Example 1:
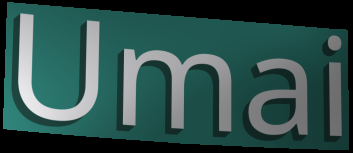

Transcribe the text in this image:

Umai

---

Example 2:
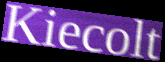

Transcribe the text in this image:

Kiecolt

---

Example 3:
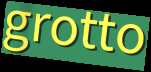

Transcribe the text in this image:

grotto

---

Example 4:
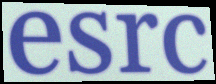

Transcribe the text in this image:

esrc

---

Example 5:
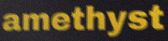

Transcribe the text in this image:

amethyst